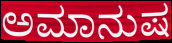
ಅಮಾನುಷ